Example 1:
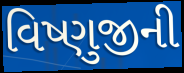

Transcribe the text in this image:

વિષ્ણુજીની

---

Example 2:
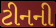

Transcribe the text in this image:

ટીનની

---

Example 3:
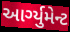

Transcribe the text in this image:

આર્ગ્યુમેન્ટ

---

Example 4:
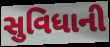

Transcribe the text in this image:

સુવિધાની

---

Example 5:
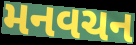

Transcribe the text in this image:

મનવચન